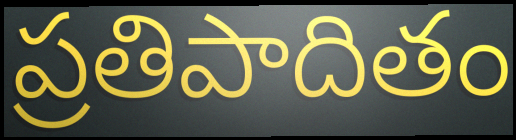
ప్రతిపాదితం